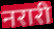
नरारी